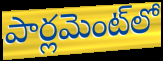
పార్లమెంట్‌లో